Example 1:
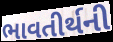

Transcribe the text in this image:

ભાવતીર્થની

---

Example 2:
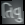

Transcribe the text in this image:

તિવુ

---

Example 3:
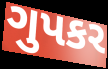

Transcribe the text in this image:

ગુપકર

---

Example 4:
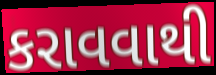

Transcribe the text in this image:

કરાવવાથી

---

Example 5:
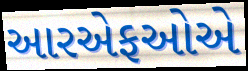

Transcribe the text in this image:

આરએફઓએ